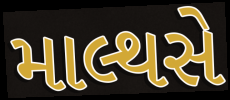
માલ્થસે